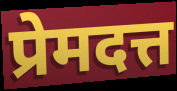
प्रेमदत्त